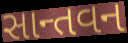
સાન્તવન